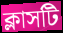
ক্লাসটি